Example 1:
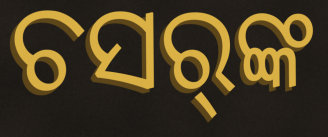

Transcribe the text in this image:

ଚସର୍‌ଙ୍କ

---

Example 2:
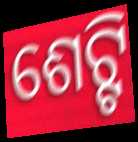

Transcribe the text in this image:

ଶେଟ୍ଟି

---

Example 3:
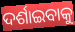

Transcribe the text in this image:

ଦର୍ଶାଇବାକୁ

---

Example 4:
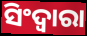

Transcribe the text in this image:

ସିଂଦ୍ୱାରା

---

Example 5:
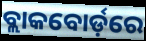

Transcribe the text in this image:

ବ୍ଲାକବୋର୍ଡ଼ରେ